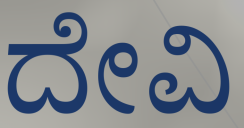
ದೇವಿ